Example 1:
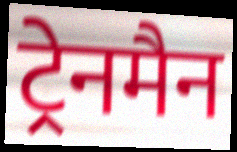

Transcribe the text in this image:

ट्रेनमैन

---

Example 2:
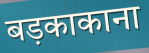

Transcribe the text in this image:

बड़काकाना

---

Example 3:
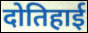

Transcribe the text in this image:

दोतिहाई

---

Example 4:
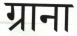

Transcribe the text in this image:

ग्राना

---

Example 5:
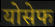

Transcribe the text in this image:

योसेफ